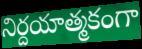
నిర్దయాత్మకంగా